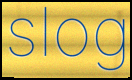
slog